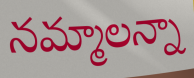
నమ్మాలన్నా